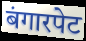
बंगारपेट